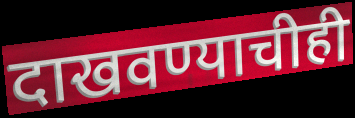
दाखवण्याचीही